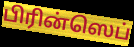
பிரின்ஸெப்